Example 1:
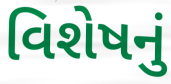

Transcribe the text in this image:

વિશેષનું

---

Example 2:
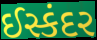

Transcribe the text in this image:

ઈસ્કંદર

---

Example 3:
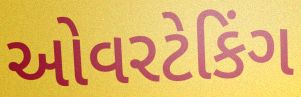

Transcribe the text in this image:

ઓવરટેકિંગ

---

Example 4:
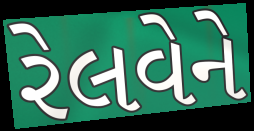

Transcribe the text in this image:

રેલવેને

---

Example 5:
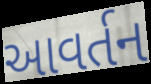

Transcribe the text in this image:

આવર્તન